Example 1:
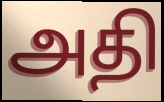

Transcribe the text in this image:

அதி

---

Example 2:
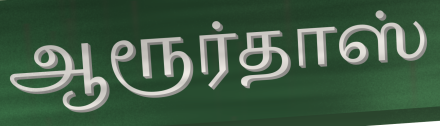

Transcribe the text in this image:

ஆரூர்தாஸ்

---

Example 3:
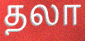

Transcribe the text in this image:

தலா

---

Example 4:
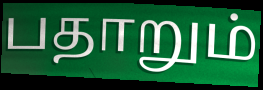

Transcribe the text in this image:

பதாறும்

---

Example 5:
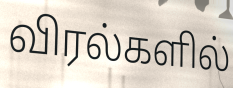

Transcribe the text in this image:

விரல்களில்